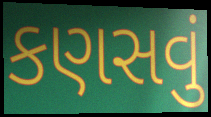
કણસવું